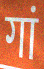
गां